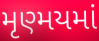
મૃણ્મયમાં